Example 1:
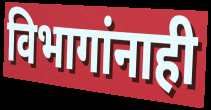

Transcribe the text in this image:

विभागांनाही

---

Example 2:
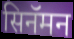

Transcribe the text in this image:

सिनॅमन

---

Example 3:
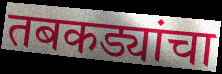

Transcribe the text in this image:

तबकड्यांचा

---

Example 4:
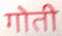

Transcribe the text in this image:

गोती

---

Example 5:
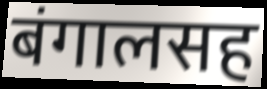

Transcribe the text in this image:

बंगालसह